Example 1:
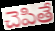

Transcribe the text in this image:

చెపితే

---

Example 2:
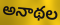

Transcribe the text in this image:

అనాథల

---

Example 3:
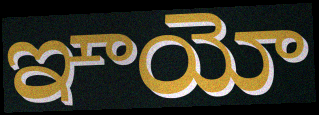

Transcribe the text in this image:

ఞాయో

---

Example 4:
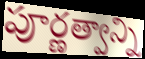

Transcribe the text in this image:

పూర్ణత్వాన్ని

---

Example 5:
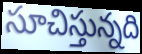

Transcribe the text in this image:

సూచిస్తున్నది